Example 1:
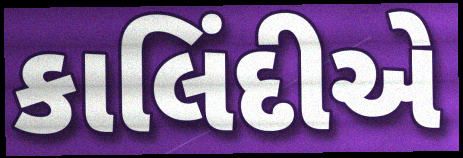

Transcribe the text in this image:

કાલિંદીએ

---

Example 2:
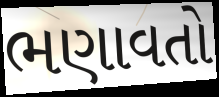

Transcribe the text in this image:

ભણાવતો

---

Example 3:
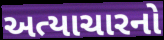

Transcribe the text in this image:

અત્યાચારનો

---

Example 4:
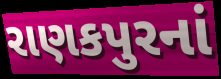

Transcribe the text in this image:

રાણકપુરનાં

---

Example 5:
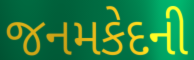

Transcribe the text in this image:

જનમકેદની